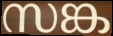
സങ്ക